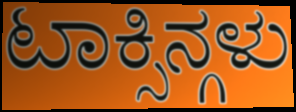
ಟಾಕ್ಸಿನ್ಗಳು